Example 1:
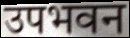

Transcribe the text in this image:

उपभवन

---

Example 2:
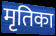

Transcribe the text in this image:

मृतिका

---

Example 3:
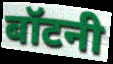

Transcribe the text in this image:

बॉटनी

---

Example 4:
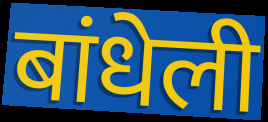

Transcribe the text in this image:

बांधेली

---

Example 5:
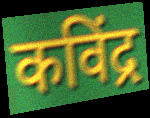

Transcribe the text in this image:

कविंद्र